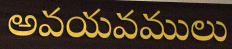
అవయవములు